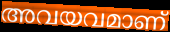
അവയവമാണ്